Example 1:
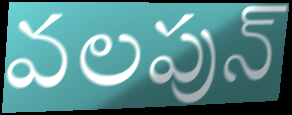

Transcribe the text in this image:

వలపున్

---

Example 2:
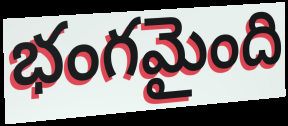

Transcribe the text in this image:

భంగమైంది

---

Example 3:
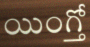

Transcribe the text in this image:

యింగ్తో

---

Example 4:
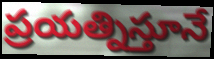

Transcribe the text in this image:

ప్రయత్నిస్తూనే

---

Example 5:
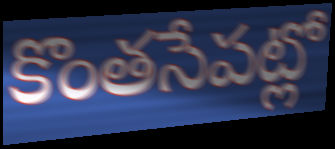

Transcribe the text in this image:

కొంతసేపట్లో